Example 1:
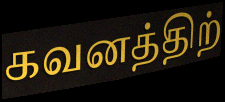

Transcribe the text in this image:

கவனத்திற்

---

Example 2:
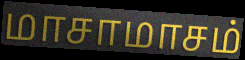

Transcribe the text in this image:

மாசாமாசம்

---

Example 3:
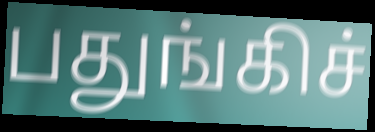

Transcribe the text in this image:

பதுங்கிச்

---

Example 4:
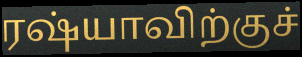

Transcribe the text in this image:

ரஷ்யாவிற்குச்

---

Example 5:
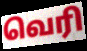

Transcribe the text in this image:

வெரி